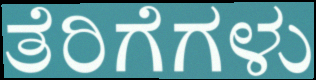
ತೆರಿಗೆಗಳು